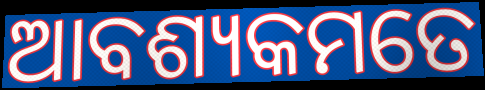
ଆବଶ୍ୟକମତେ